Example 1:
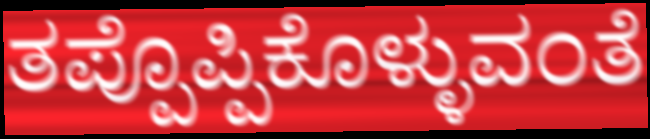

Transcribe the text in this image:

ತಪ್ಪೊಪ್ಪಿಕೊಳ್ಳುವಂತೆ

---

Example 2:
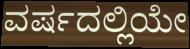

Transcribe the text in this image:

ವರ್ಷದಲ್ಲಿಯೇ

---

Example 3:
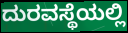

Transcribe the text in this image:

ದುರವಸ್ಥೆಯಲ್ಲಿ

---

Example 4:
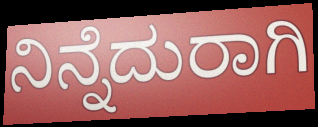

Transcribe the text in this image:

ನಿನ್ನೆದುರಾಗಿ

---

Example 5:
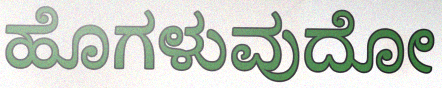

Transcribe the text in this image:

ಹೊಗಳುವುದೋ